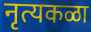
नृत्यकळा